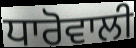
ਧਾਰੋਵਾਲੀ